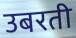
उबरती